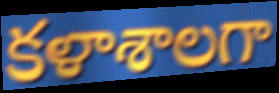
కళాశాలగా